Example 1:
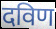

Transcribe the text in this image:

दविण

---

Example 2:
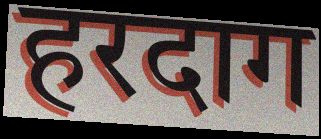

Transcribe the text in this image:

हरदाग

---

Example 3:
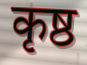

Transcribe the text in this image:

कृष्ठ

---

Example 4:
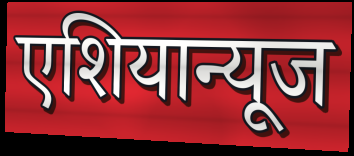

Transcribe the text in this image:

एशियान्यूज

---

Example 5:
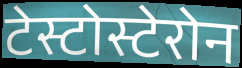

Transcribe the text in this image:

टेस्‍टोस्‍टेरोन